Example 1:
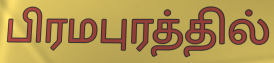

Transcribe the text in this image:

பிரமபுரத்தில்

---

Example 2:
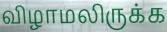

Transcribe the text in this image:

விழாமலிருக்க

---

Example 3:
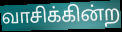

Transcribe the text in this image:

வாசிக்கின்ற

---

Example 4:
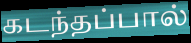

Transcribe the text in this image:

கடந்தப்பால்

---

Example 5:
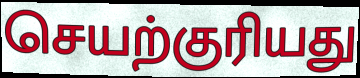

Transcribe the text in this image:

செயற்குரியது